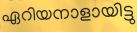
ഏറിയനാളായിട്ടു